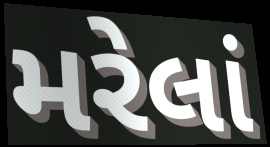
મરેલાં